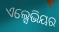
ଏଲ୍ସେଭିୟର